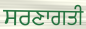
ਸਰਣਾਗਤੀ